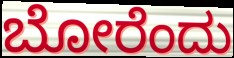
ಬೋರೆಂದು